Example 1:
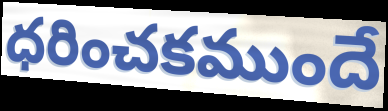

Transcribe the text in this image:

ధరించకముందే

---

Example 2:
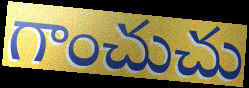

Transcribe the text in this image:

గాంచుచు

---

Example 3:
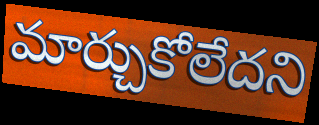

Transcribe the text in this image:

మార్చుకోలేదని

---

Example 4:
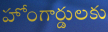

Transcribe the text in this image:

హోంగార్డులకు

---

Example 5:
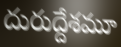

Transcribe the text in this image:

దురుద్దేశమూ